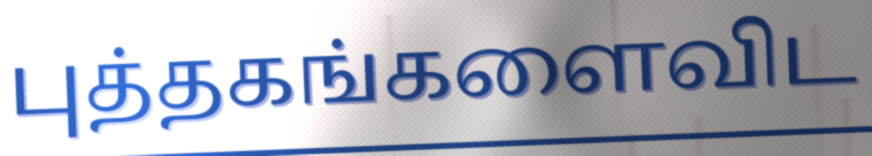
புத்தகங்களைவிட